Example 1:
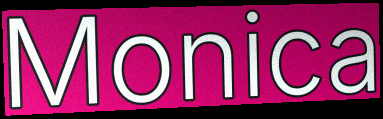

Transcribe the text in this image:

Monica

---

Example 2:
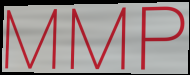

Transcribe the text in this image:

MMP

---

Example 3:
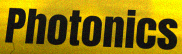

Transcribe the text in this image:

Photonics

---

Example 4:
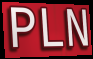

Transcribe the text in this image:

PLN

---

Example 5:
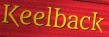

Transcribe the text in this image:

Keelback